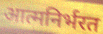
आत्मनिर्भरत